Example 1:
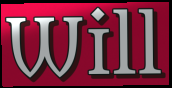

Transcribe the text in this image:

Will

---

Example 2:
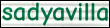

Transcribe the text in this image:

sadyavilla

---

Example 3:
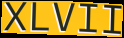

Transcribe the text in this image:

XLVII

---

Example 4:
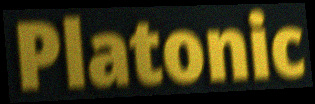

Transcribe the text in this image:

Platonic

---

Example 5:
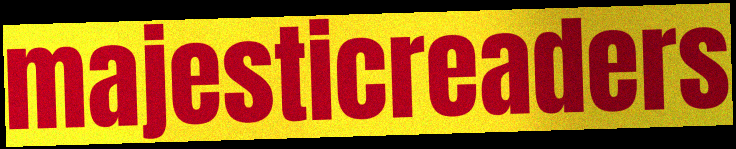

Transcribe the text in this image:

majesticreaders